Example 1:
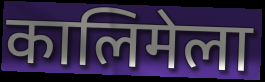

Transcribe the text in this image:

कालिमेला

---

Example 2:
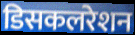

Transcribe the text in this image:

डिसकलरेशन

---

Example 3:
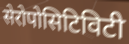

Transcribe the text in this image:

सेरोपोसिटिविटी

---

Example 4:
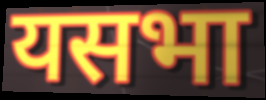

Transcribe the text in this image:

यसभा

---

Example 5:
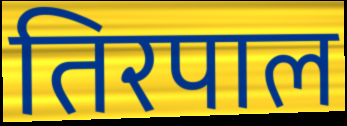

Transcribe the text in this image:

तिरपाल